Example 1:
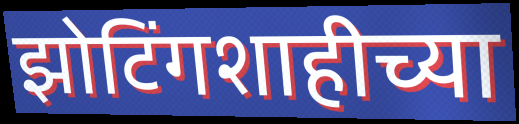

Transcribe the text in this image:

झोटिंगशाहीच्या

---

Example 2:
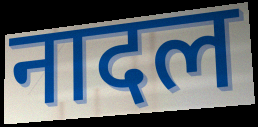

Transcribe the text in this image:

नादल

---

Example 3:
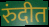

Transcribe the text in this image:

रुंदीत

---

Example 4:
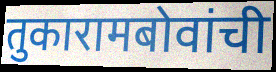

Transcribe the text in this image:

तुकारामबोवांची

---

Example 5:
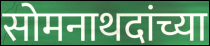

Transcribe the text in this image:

सोमनाथदांच्या